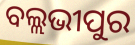
ବଲ୍ଲଭୀପୁର